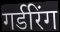
गर्डरिंग